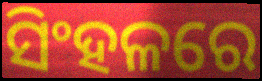
ସିଂହଳରେ